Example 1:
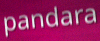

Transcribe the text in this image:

pandara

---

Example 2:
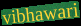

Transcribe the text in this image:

vibhawari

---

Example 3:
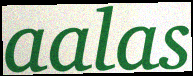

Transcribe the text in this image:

aalas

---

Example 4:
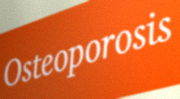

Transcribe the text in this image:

Osteoporosis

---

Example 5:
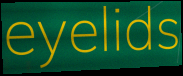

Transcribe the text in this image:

eyelids